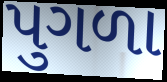
પુગળા